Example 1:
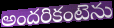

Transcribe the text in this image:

అందరికంటెను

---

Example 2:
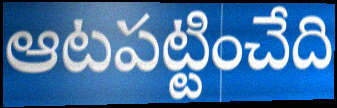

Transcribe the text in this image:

ఆటపట్టించేది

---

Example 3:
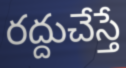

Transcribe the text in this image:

రద్దుచేస్తే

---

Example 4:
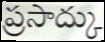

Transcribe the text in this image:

ప్రసాద్కు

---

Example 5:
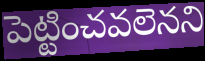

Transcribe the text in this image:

పెట్టించవలెనని